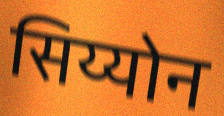
सिय्योन